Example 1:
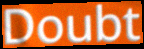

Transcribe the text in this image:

Doubt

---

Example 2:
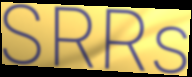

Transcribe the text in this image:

SRRs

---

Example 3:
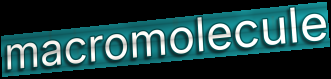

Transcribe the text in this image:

macromolecule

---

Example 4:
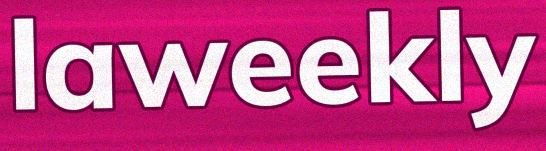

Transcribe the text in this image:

laweekly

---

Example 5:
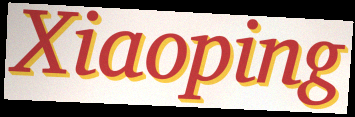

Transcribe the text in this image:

Xiaoping